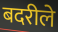
बदरीले